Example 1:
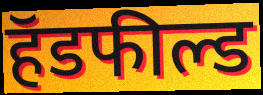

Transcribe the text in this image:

हॅडफील्ड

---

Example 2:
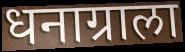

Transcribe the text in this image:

धनाग्राला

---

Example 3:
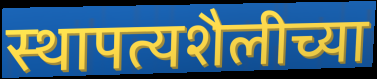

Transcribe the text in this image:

स्थापत्यशैलीच्या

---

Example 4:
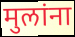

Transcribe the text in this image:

मुलांना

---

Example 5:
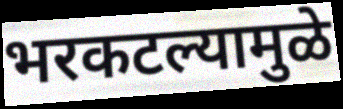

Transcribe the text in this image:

भरकटल्यामुळे